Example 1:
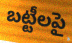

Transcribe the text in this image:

బట్టీలపై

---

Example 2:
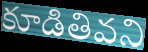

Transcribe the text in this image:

కూడితివని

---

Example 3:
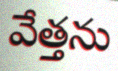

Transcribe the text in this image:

వేత్తను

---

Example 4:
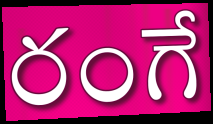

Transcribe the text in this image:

రంగే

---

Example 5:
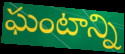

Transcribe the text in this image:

ఘంటాన్ని